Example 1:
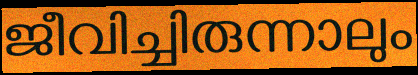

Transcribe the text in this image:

ജീവിച്ചിരുന്നാലും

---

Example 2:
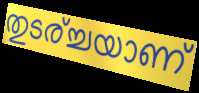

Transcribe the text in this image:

തുടര്ച്ചയാണ്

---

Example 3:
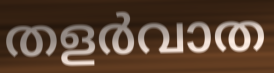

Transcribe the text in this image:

തളർവാത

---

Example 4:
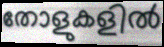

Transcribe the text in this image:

തോളുകളിൽ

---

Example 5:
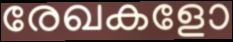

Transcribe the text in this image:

രേഖകളോ